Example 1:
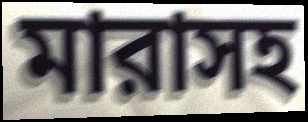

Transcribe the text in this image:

মারাসহ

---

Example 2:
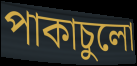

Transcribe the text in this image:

পাকাচুলো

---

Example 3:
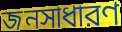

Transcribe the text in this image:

জনসাধারণ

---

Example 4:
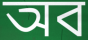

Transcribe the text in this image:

অব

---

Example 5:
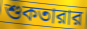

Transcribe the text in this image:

শুকতারার